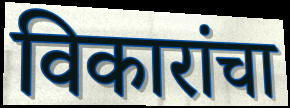
विकारांचा